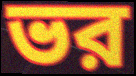
ভর